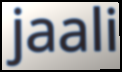
jaali